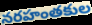
నరహంతకుల